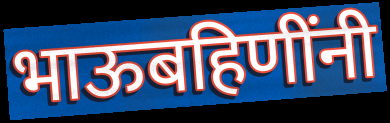
भाऊबहिणींनी